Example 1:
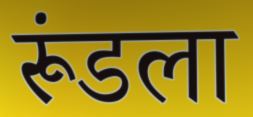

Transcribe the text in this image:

रूंडला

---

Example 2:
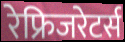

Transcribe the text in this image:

रेफ्रिजरेटर्स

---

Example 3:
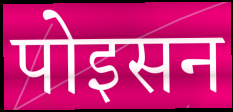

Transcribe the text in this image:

पोइसन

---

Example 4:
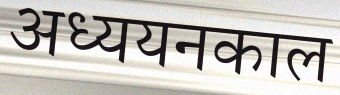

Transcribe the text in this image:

अध्ययनकाल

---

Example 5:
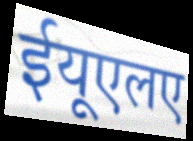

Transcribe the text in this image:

ईयूएलए